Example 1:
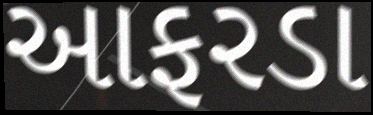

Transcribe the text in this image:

આફરડા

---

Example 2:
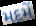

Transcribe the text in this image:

મદમેં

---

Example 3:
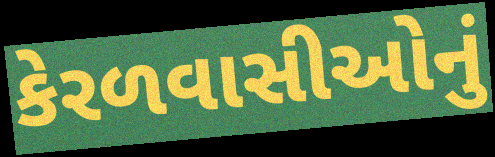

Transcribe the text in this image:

કેરળવાસીઓનું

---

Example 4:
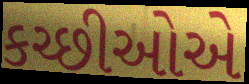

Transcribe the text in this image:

કચ્છીઓએ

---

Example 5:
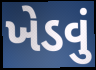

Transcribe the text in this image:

ખેડવું